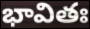
భావితః